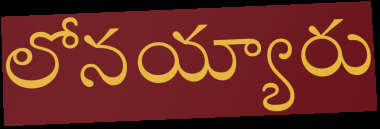
లోనయ్యారు